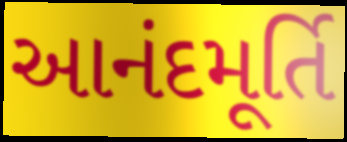
આનંદમૂર્તિ